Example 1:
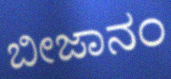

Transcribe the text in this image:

ಬೀಜಾನಂ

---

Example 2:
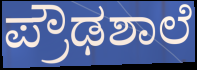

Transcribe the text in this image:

ಪ್ರೌಢಶಾಲೆ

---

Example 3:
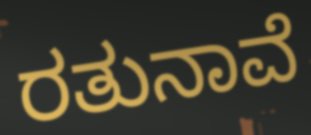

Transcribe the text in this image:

ರತುನಾವೆ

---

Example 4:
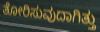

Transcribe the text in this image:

ತೋರಿಸುವುದಾಗಿತ್ತು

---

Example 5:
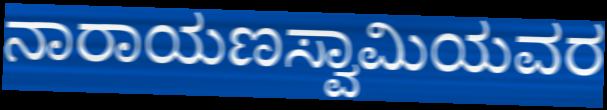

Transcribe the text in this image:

ನಾರಾಯಣಸ್ವಾಮಿಯವರ